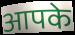
आपके